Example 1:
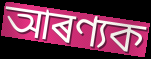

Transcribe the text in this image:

আৰণ্যক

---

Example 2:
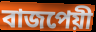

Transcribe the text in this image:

বাজপেয়ী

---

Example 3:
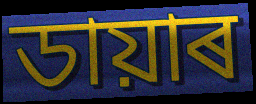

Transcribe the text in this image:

ডায়াৰ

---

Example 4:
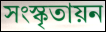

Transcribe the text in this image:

সংস্কৃতায়ন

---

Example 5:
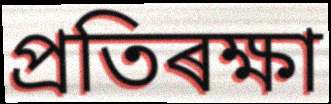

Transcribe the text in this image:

প্ৰতিৰক্ষা